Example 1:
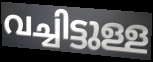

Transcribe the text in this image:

വച്ചിട്ടുള്ള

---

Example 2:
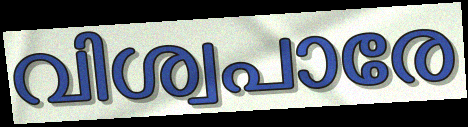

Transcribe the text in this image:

വിശ്വപാരേ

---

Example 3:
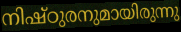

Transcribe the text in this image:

നിഷ്ഠുരനുമായിരുന്നു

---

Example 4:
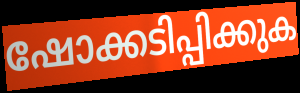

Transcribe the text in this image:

ഷോക്കടിപ്പിക്കുക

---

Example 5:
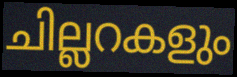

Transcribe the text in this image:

ചില്ലറകളും